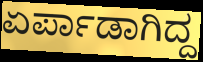
ಏರ್ಪಾಡಾಗಿದ್ದ